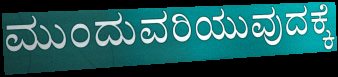
ಮುಂದುವರಿಯುವುದಕ್ಕೆ